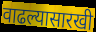
वाढल्यासारखी